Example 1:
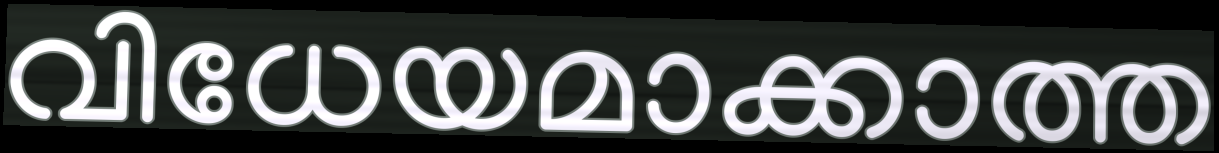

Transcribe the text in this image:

വിധേയമാക്കാത്ത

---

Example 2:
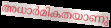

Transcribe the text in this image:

അധാർമികതയാണു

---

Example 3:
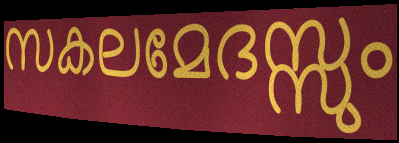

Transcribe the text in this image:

സകലമേദസ്സും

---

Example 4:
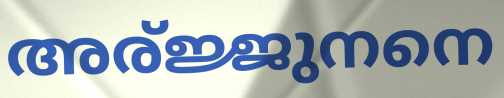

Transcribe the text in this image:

അര്ജ്ജുനനെ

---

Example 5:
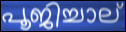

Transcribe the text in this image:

പൂജിച്ചാല്